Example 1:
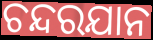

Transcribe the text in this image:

ଚନ୍ଦରଯାନ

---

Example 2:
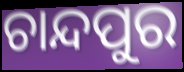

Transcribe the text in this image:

ଚାନ୍ଦପୁର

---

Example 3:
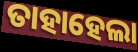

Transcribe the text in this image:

ତାହାହେଲା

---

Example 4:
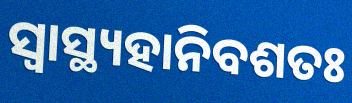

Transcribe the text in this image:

ସ୍ୱାସ୍ଥ୍ୟହାନିବଶତଃ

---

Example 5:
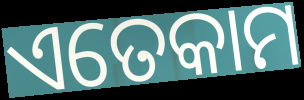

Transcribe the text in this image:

ଏତେକାମ